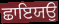
ਛਾਇਯਉ